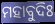
ମହାବୁଦିଃ